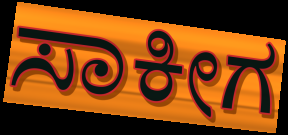
ಸಾಕೀಗ